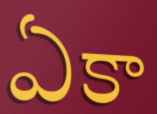
ఏకా